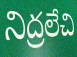
నిద్రలేచి